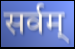
सर्वम्